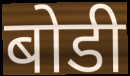
बोडी